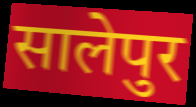
सालेपुर